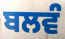
ਬਲਵੰ